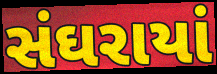
સંઘરાયાં